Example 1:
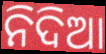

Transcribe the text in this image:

ନିଦିଆ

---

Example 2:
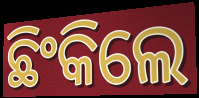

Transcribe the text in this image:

ଛିଂକିଲେ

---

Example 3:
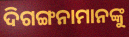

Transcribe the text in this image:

ଦିଗଙ୍ଗନାମାନଙ୍କୁ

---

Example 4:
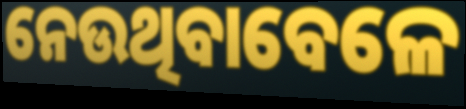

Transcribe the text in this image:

ନେଉଥିବାବେଳେ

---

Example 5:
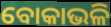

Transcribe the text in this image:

ବୋକାଭଳି